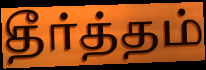
தீர்த்தம்